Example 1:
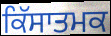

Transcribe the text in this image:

ਕਿੱਸਾਤਮਕ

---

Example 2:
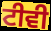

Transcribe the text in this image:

ਟੀਵੀ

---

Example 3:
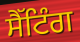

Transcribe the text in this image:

ਸੈੱਟਿੰਗ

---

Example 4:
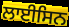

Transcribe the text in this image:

ਲਾਈਸਿਨ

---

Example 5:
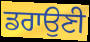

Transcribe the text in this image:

ਡਰਾਉਣੀ